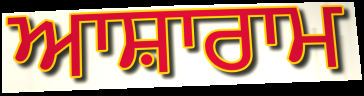
ਆਸ਼ਾਰਾਮ